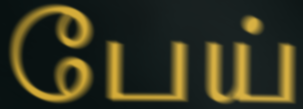
பேய்